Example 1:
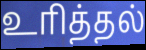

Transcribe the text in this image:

உரித்தல்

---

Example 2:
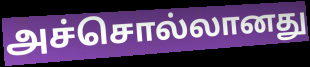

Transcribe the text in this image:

அச்சொல்லானது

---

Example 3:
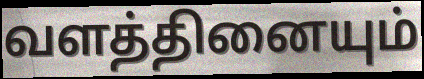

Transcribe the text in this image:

வளத்தினையும்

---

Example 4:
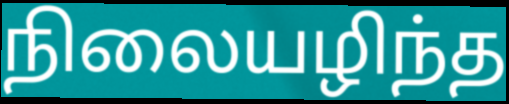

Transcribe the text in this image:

நிலையழிந்த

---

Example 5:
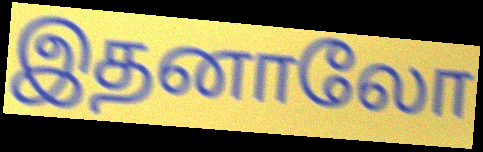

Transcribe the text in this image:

இதனாலோ